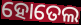
ହୋତେଲ